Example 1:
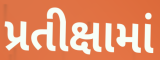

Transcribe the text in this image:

પ્રતીક્ષામાં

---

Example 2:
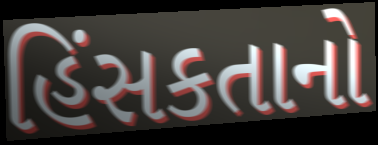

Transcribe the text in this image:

હિંસકતાનો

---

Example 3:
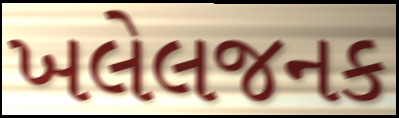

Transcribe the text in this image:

ખલેલજનક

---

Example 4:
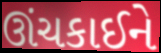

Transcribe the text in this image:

ઊંચકાઈને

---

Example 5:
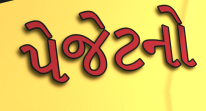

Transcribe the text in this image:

પેજેટનો